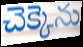
చెక్కెను